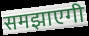
समझाएगी